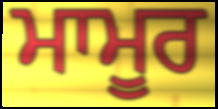
ਮਾਮੂਰ